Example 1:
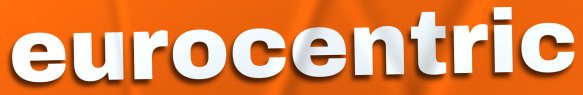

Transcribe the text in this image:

eurocentric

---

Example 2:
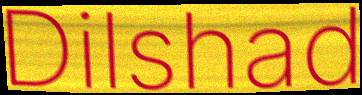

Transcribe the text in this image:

Dilshad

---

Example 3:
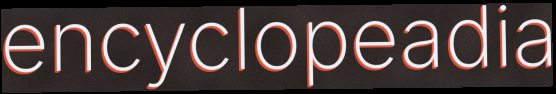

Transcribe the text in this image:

encyclopeadia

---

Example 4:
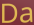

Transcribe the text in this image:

Da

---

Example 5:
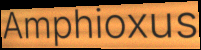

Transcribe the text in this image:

Amphioxus